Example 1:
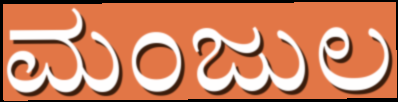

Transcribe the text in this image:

ಮಂಜುಲ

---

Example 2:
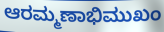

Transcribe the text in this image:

ಆರಮ್ಮಣಾಭಿಮುಖಂ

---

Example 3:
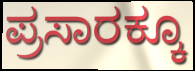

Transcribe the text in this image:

ಪ್ರಸಾರಕ್ಕೂ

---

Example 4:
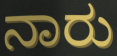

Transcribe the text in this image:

ನಾರು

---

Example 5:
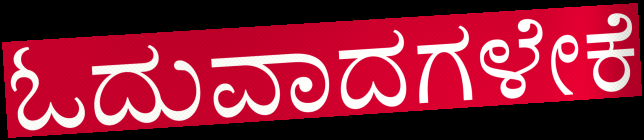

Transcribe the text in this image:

ಓದುವಾದಗಳೇಕೆ